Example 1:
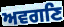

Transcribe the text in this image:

ਅਵਗਣਿ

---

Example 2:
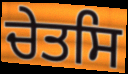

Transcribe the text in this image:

ਚੇਤਸਿ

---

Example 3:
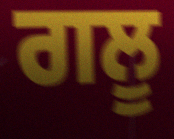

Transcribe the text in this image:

ਗਲੂ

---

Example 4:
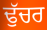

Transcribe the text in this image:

ਢੁੱਚਰ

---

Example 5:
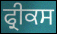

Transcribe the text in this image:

ਫ੍ਰੀਕਸ